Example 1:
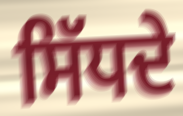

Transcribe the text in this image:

ਸਿੱਧਦੇ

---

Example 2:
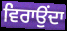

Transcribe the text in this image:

ਵਿਰਾਉਂਦਾ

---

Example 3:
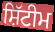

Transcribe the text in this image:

ਸ਼ਿੱਟੀਮ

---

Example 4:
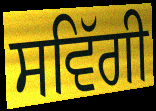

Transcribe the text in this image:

ਸਵਿੱਗੀ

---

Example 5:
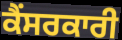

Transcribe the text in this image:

ਕੈਂਸਰਕਾਰੀ